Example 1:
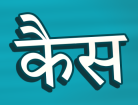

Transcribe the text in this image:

कैस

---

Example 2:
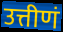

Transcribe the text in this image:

उत्तीणं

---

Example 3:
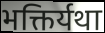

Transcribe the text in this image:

भक्तिर्यथा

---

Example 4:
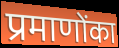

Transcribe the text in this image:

प्रमाणोंका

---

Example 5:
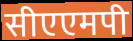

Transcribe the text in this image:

सीएएमपी